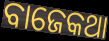
ବାଜେକଥା